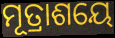
ମୂତ୍ରାଶୟେ